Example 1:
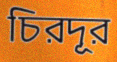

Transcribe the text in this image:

চিরদূর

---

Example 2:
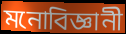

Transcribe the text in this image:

মনোবিজ্ঞানী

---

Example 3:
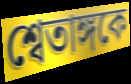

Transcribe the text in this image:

শ্বেতাঙ্গকে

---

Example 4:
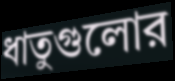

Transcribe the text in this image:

ধাতুগুলোর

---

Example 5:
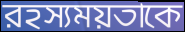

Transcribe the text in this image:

রহস্যময়তাকে